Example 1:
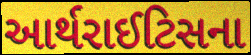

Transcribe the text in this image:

આર્થરાઈટિસના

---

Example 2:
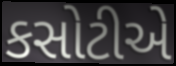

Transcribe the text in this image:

કસોટીએ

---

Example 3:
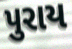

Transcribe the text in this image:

પુરાય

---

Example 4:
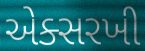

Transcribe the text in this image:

એક્સરખી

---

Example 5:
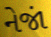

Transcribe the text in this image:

નેજાં